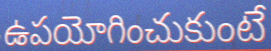
ఉపయోగించుకుంటే